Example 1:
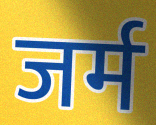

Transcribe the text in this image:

जर्म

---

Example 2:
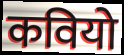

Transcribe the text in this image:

कवियो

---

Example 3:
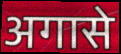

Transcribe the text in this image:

अगासे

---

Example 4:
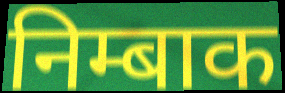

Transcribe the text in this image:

निम्बाक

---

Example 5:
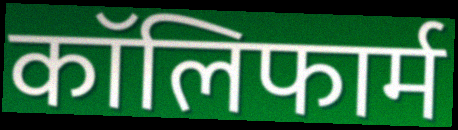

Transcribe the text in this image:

कॉलिफार्म